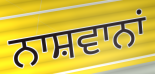
ਨਾਸ਼ਵਾਨਾਂ